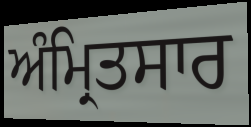
ਅੰਮ੍ਰਿਤਸਾਰ